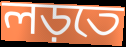
লড়তে